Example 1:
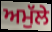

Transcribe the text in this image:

ਅਮੁੱਲੇ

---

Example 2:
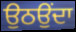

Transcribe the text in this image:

ਉਠਉਂਦਾ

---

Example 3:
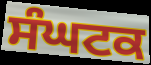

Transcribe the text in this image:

ਸੰਘਟਕ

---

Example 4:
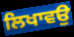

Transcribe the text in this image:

ਲਿਖਾਵਉ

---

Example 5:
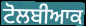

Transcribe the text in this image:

ਟੋਲਬੀਆਕ